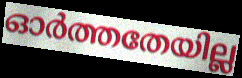
ഓർത്തതേയില്ല